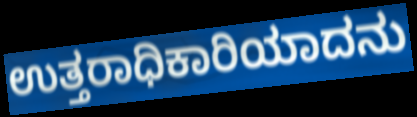
ಉತ್ತರಾಧಿಕಾರಿಯಾದನು